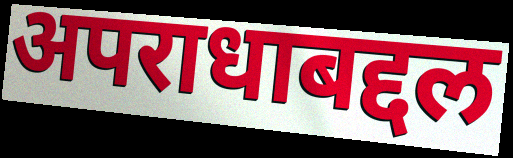
अपराधाबद्दल